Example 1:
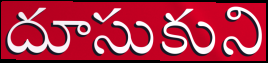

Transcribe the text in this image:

దూసుకుని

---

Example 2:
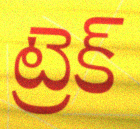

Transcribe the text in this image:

ట్రెక్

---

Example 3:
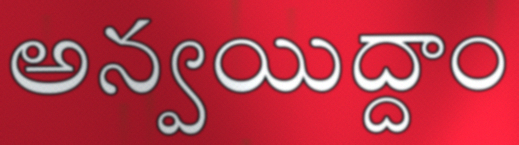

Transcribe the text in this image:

అన్వయిద్దాం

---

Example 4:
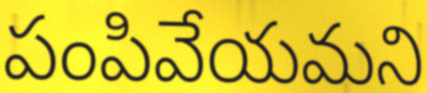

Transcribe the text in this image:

పంపివేయమని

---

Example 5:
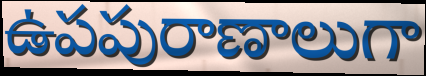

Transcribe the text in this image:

ఉపపురాణాలుగా